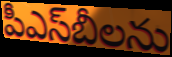
పీఎస్‌బీలను